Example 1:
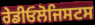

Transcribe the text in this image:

ਰੇਡੀਓਲੋਜਿਸਟਸ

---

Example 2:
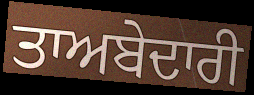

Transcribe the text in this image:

ਤਾਅਬੇਦਾਰੀ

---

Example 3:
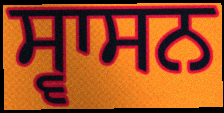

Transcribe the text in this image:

ਸ੍ਵਾਸਨ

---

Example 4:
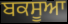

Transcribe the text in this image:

ਬਕਸੂਆ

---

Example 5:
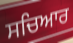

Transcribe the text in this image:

ਸਚਿਆਰ